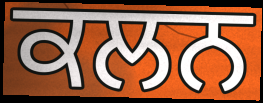
ਕਲਨ